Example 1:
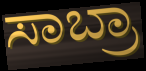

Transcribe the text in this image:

ಸಾಬ್ರಾ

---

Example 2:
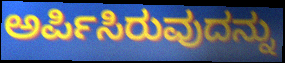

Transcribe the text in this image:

ಅರ್ಪಿಸಿರುವುದನ್ನು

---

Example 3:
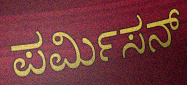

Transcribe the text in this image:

ಪರ್ಮಿಸನ್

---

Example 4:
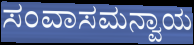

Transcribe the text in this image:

ಸಂವಾಸಮನ್ವಾಯ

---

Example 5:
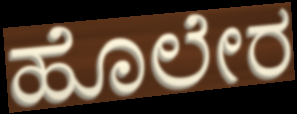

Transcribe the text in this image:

ಹೊಲೇರ